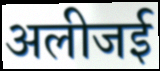
अलीजई